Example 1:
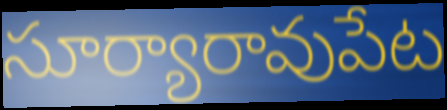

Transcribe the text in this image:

సూర్యారావుపేట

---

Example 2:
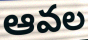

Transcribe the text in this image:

ఆవల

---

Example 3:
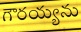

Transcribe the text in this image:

గౌరయ్యను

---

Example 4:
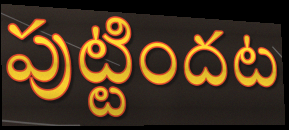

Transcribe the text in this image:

పుట్టిందట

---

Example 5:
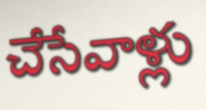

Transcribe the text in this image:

చేసేవాళ్లు